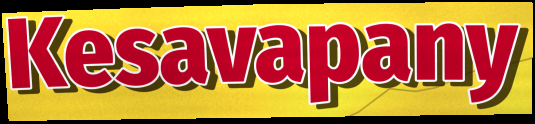
Kesavapany